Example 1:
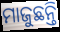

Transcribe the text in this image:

ମାଜୁଛନ୍ତି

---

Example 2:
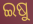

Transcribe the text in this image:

ଇଷୁ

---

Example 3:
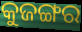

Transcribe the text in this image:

କୁଜଙ୍ଗର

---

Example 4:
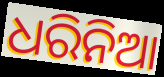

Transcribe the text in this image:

ଧରିନିଆ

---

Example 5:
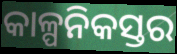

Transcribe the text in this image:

କାଳ୍ପନିକସ୍ତର